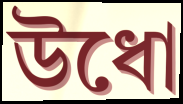
উধো